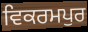
ਵਿਕਰਮਪੁਰ